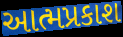
આત્મપ્રકાશ